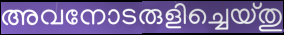
അവനോടരുളിച്ചെയ്തു